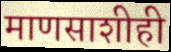
माणसाशीही